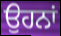
ਉਹਨਾਂ